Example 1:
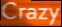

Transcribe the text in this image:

Crazy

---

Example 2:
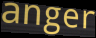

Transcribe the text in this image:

anger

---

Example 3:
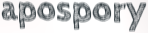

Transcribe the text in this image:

apospory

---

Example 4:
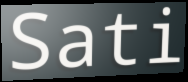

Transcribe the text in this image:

Sati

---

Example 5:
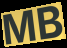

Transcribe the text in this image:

MB